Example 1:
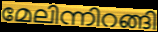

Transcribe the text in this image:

മേലിന്നിറങ്ങി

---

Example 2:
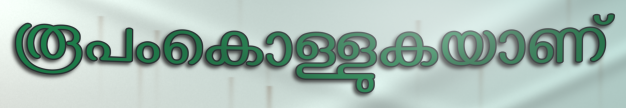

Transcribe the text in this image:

രൂപംകൊള്ളുകയാണ്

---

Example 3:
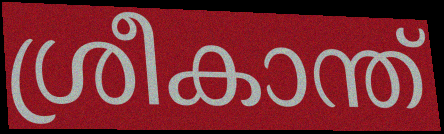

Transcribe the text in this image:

ശ്രീകാന്ത്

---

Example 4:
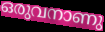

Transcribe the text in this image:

ഒരുവനാണു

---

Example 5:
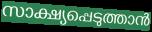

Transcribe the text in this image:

സാക്ഷ്യപ്പെടുത്താൻ